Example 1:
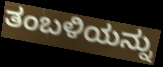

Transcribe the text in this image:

ತಂಬಳಿಯನ್ನು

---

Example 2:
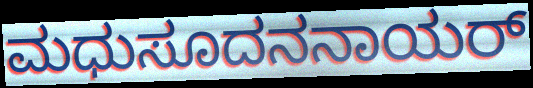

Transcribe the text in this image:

ಮಧುಸೂದನನಾಯರ್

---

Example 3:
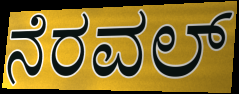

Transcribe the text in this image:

ನೆರವಲ್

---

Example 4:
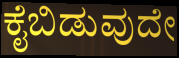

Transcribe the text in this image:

ಕೈಬಿಡುವುದೇ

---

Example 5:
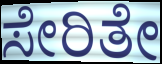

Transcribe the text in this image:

ಸೇರಿತೇ